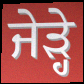
ਜੇੜ੍ਹੇ